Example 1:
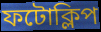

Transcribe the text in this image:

ফটোক্লিপ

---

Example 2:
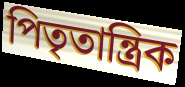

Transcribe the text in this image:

পিতৃতান্ত্ৰিক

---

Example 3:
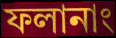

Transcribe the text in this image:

ফলানাং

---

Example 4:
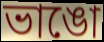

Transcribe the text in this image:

ভাঙো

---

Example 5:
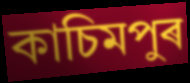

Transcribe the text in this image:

কাচিমপুৰ